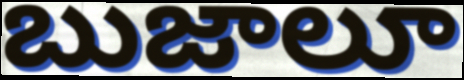
బుజాలూ